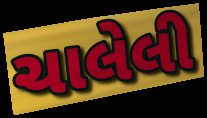
ચાલેલી